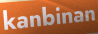
kanbinan